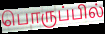
பொருப்பில்